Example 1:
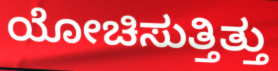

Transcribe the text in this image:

ಯೋಚಿಸುತ್ತಿತ್ತು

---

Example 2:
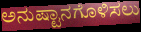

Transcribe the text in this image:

ಅನುಷ್ಟಾನಗೊಳಿಸಲು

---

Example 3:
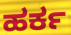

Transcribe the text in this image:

ಹರ್ಕ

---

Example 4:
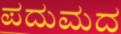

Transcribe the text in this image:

ಪದುಮದ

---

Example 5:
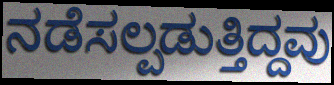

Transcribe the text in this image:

ನಡೆಸಲ್ಪಡುತ್ತಿದ್ದವು